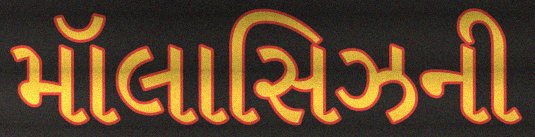
મૉલાસિઝની